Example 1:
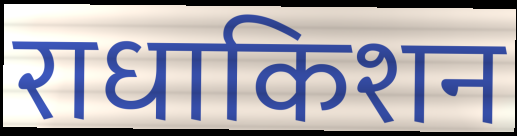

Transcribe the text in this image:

राधाकिशन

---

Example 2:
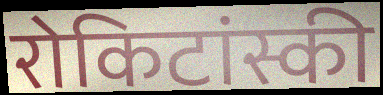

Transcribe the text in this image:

रोकिटांस्की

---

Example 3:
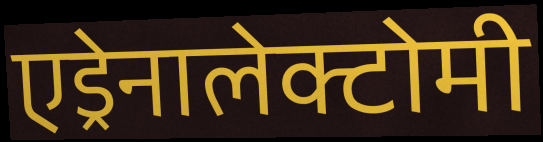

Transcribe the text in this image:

एड्रेनालेक्टोमी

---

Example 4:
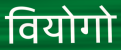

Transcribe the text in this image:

वियोगो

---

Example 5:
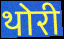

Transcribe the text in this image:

थोरी